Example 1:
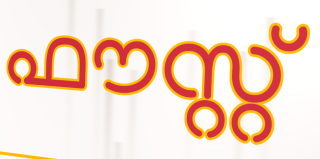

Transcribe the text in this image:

ഫൗസ്റ്റ്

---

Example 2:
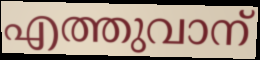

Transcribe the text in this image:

എത്തുവാന്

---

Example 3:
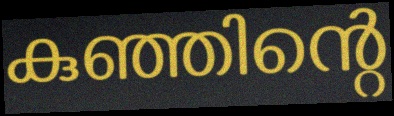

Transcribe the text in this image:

കുഞ്ഞിന്റെ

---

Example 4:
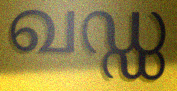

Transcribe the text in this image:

ഖഡ്ഡ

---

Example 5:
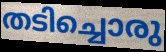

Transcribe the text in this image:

തടിച്ചൊരു